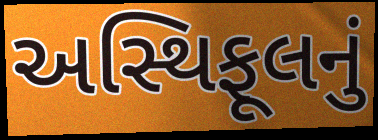
અસ્થિફૂલનું